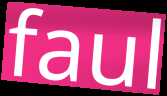
faul